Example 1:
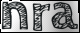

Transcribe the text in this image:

nra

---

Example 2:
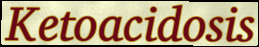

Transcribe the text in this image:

Ketoacidosis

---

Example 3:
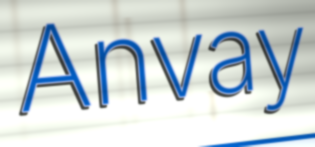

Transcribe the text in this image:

Anvay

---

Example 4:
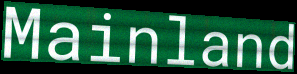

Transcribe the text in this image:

Mainland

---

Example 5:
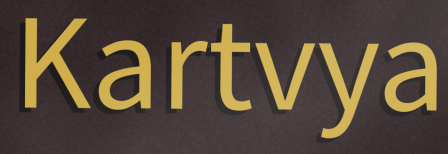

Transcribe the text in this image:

Kartvya